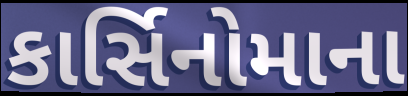
કાર્સિનોમાના